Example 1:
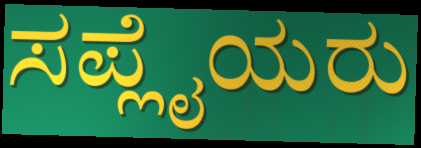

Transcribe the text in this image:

ಸಪ್ಲೈಯರು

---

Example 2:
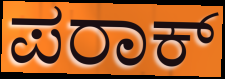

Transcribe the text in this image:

ಪರಾಕ್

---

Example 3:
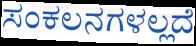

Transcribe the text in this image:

ಸಂಕಲನಗಳಲ್ಲದೆ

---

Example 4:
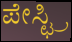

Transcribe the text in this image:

ಪೇಸ್ಟ್ರಿ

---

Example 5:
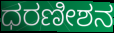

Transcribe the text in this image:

ಧರಣೀಶನ